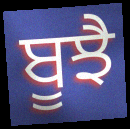
ਬੂਝੈ